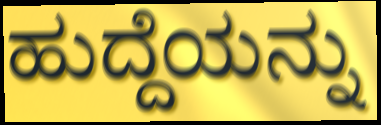
ಹುದ್ದೆಯನ್ನು